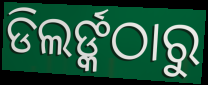
ଡିଲର୍ଙ୍କଠାରୁ